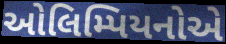
ઓલિમ્પિયનોએ